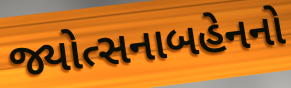
જ્યોત્સનાબહેનનો